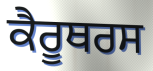
ਕੈਰੂਥਰਸ